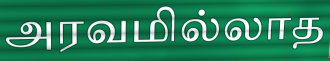
அரவமில்லாத